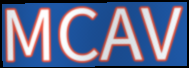
MCAV